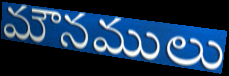
మౌనములు